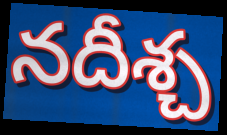
నదీశ్చ